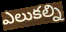
ఎలుకల్ని